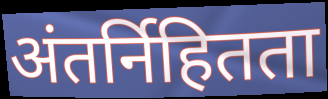
अंतर्निहितता